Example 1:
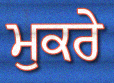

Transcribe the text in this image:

ਮੁਕਰੇ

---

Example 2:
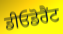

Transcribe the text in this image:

ਡੀਓਡੋਰੈਂਟ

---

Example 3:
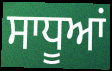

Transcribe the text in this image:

ਸਾਧੂਆਂ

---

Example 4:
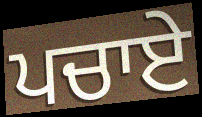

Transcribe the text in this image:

ਪਚਾਏ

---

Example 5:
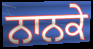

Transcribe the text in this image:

ਨਾਨਕੇ